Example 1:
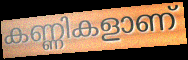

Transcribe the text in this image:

കണ്ണികളാണ്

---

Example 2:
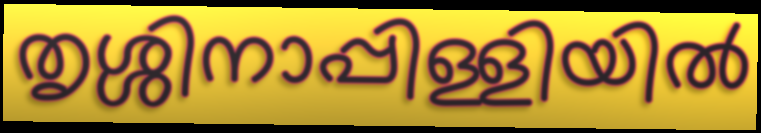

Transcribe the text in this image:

തൃശ്ശിനാപ്പിള്ളിയിൽ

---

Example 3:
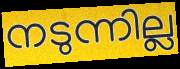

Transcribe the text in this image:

നടുന്നില്ല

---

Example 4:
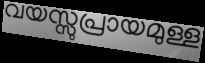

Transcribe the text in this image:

വയസ്സുപ്രായമുള്ള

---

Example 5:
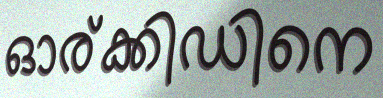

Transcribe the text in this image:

ഓര്ക്കിഡിനെ